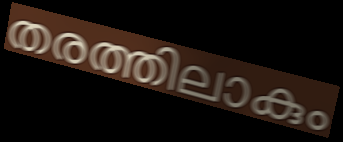
തരത്തിലാകും